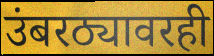
उंबरठ्यावरही